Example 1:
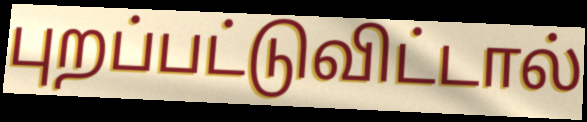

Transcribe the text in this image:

புறப்பட்டுவிட்டால்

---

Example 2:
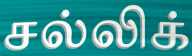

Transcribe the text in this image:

சல்லிக்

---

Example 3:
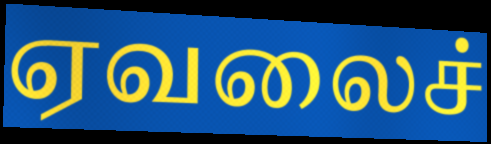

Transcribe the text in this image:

ஏவலைச்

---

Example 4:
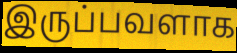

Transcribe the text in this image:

இருப்பவளாக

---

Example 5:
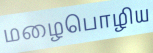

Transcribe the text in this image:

மழைபொழிய